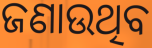
ଜଣାଉଥିବ